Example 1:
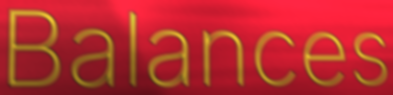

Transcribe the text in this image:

Balances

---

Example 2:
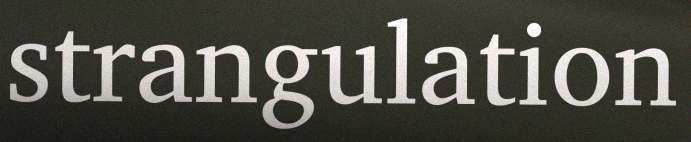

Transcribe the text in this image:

strangulation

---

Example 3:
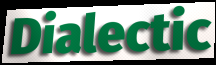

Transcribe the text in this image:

Dialectic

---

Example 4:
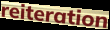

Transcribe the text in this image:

reiteration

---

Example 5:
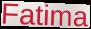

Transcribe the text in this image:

Fatima